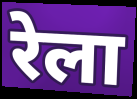
रेला